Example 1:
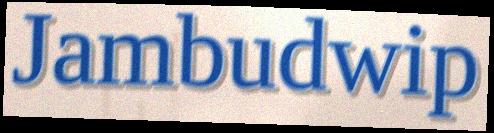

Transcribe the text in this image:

Jambudwip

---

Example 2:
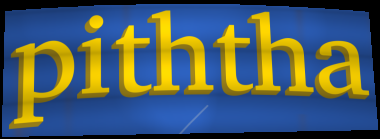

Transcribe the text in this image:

piththa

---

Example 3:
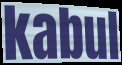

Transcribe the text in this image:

kabul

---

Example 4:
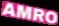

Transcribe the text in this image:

AMRO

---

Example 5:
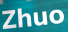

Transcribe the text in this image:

Zhuo